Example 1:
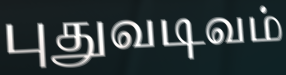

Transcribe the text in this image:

புதுவடிவம்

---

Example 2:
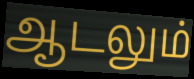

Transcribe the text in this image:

ஆடலும்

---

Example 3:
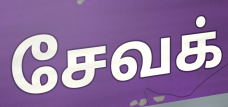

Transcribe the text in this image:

சேவக்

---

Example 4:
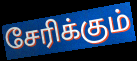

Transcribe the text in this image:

சேரிக்கும்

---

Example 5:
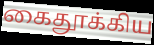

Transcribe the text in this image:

கைதூக்கிய